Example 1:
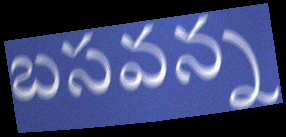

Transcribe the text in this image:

బసవన్న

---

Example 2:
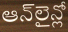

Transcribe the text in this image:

ఆన్‌లైన్లో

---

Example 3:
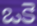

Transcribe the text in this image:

ఒకె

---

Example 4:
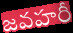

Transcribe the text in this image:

జవహరీ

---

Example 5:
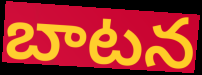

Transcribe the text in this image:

బాటన